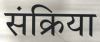
संक्रिया